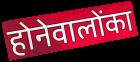
होनेवालोंका